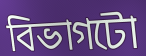
বিভাগটো